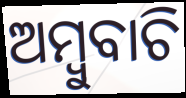
ଅମ୍ବୁବାଚି